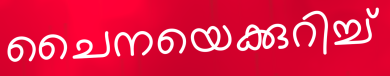
ചൈനയെക്കുറിച്ച്